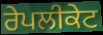
ਰੇਪਲੀਕੇਟ